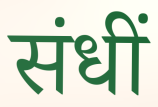
संधीं